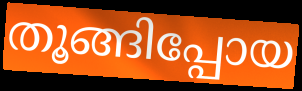
തൂങ്ങിപ്പോയ